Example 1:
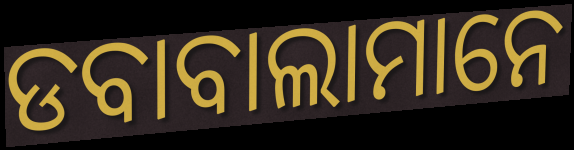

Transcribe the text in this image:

ଡବାବାଲାମାନେ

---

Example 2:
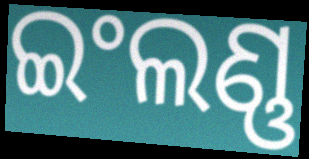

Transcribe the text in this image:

ଇଂଲଣ୍ଣ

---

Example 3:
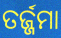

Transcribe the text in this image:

ତର୍ଜ୍ଜମା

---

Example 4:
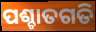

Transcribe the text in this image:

ପଶ୍ଚାତଗତି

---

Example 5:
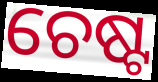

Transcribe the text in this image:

ଚେଷ୍ଟ